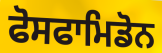
ਫੋਸਫਾਮਿਡੋਨ